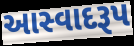
આસ્વાદરૂપ